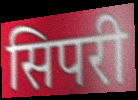
सिपरी